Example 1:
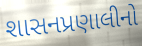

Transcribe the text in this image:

શાસનપ્રણાલીનો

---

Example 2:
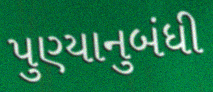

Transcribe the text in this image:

પુણ્યાનુબંધી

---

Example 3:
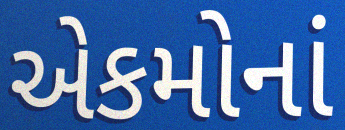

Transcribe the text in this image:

એકમોનાં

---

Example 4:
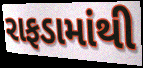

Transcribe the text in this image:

રાફડામાંથી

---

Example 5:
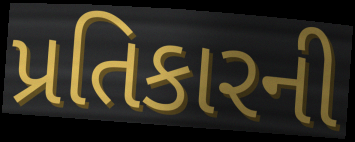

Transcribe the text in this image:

પ્રતિકારની